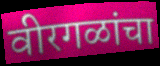
वीरगळांचा